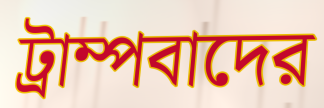
ট্রাম্পবাদের